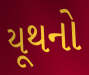
યૂથનો